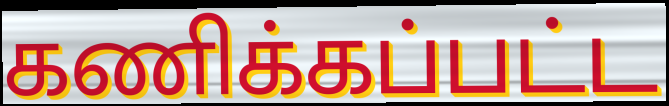
கணிக்கப்பட்ட